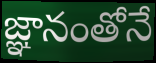
జ్ఞానంతోనే